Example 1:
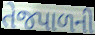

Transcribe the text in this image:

તેજપાળની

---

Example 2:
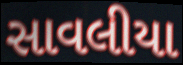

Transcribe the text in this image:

સાવલીયા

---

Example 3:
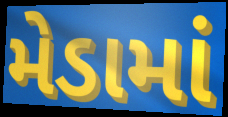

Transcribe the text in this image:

મેડામાં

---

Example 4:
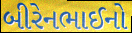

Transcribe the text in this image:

બીરેનભાઈનો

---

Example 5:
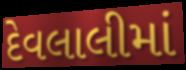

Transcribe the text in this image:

દેવલાલીમાં